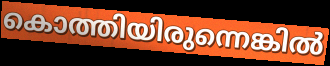
കൊത്തിയിരുന്നെങ്കിൽ